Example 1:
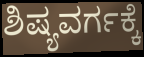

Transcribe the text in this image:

ಶಿಷ್ಯವರ್ಗಕ್ಕೆ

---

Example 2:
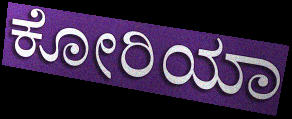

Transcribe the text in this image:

ಕೋರಿಯಾ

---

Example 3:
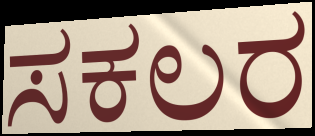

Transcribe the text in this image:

ಸಕಲರ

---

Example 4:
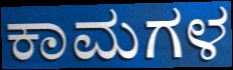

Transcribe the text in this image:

ಕಾಮಗಳ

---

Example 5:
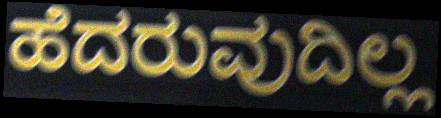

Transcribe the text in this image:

ಹೆದರುವುದಿಲ್ಲ